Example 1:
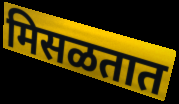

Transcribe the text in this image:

मिसळतात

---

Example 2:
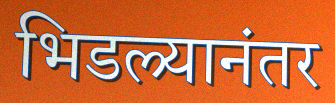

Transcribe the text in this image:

भिडल्यानंतर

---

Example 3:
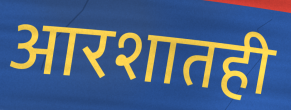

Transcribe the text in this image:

आरशातही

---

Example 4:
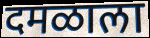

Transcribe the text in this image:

दमळाला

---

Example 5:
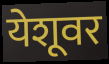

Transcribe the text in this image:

येशूवर